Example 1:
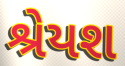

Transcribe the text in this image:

શ્રેયશ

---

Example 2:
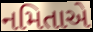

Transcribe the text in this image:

નમિતાએ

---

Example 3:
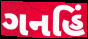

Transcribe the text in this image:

ગનહિં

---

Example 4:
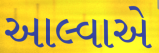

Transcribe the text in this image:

આલ્વાએ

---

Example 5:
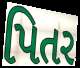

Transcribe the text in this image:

પિતર